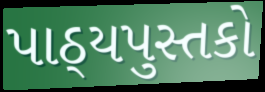
પાઠ્યપુસ્તકો